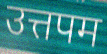
उत्तपम